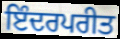
ਇੰਦਰਪਰੀਤ